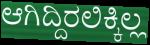
ಆಗಿದ್ದಿರಲಿಕ್ಕಿಲ್ಲ